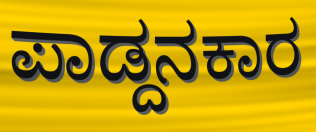
ಪಾಡ್ದನಕಾರ